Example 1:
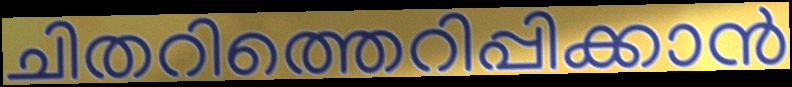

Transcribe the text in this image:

ചിതറിത്തെറിപ്പിക്കാൻ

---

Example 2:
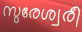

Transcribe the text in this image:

സുരേശ്വരീ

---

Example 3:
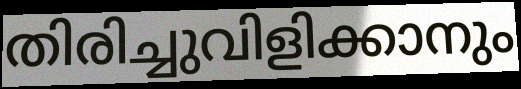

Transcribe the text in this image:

തിരിച്ചുവിളിക്കാനും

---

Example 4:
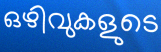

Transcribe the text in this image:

ഒഴിവുകളുടെ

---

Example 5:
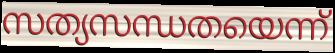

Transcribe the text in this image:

സത്യസന്ധതയെന്ന്